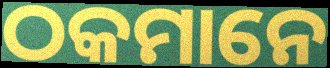
ଠକମାନେ